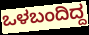
ಒಳಬಂದಿದ್ದ